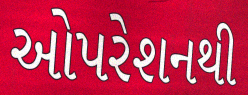
ઓપરેશનથી